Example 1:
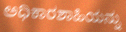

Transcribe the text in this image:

ಅಧಿಕಾರಶಾಹಿಯನ್ನು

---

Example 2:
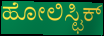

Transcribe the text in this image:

ಹೋಲಿಸ್ಟಿಕ್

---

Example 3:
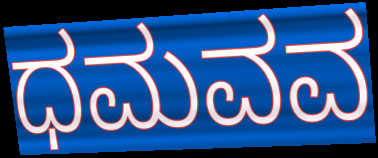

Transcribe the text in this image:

ಧಮವವ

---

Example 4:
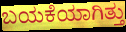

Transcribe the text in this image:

ಬಯಕೆಯಾಗಿತ್ತು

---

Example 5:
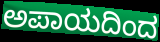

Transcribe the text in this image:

ಅಪಾಯದಿಂದ